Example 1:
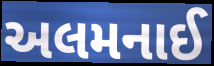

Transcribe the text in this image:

અલમનાઈ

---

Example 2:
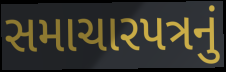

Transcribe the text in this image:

સમાચારપત્રનું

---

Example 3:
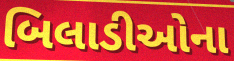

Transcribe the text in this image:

બિલાડીઓના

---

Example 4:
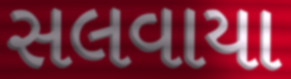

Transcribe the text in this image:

સલવાયા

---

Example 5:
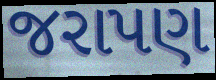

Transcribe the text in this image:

જરાપણ